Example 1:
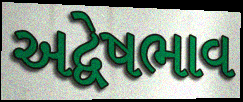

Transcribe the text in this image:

અદ્વેષભાવ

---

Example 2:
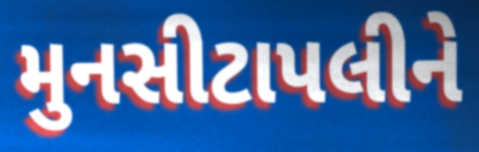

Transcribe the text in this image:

મુનસીટાપલીને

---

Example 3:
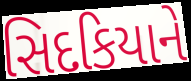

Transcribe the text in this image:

સિદકિયાને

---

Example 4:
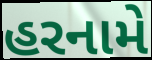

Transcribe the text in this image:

હરનામે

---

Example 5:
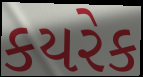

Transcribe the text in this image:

કયરેક